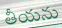
తీయను